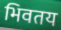
भिवतय